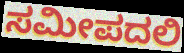
ಸಮೀಪದಲಿ